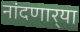
नांदणार्‍या